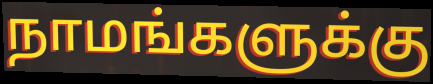
நாமங்களுக்கு